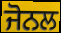
ਜੋਨਲ